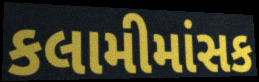
કલામીમાંસક